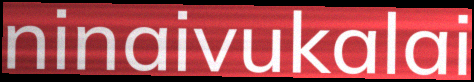
ninaivukalai